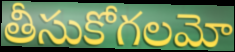
తీసుకోగలమో